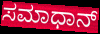
ಸಮಾಧಾನ್